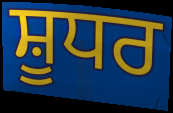
ਸ਼ੂਧਰ